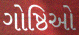
ગોષ્ઠિઓ